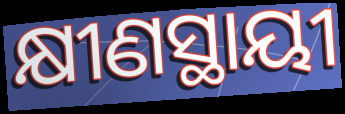
କ୍ଷୀଣସ୍ଥାୟୀ